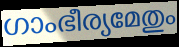
ഗാംഭീര്യമേതും